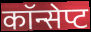
कॉन्‍सेप्‍ट